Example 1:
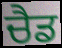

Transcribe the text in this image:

ਚੈਡ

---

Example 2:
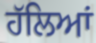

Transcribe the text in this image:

ਹੱਲਿਆਂ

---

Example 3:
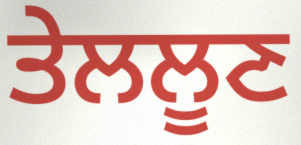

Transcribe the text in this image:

ਤੇਲਲੂਣ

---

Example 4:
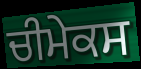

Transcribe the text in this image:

ਚੀਮੇਕਸ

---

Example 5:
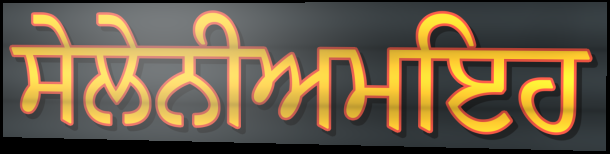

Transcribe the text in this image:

ਸੇਲੇਨੀਅਮਇਹ